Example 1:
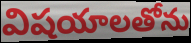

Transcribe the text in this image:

విషయాలతోను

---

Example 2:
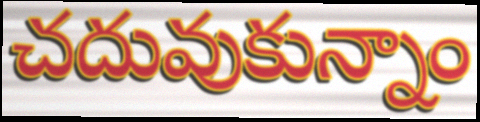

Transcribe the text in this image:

చదువుకున్నాం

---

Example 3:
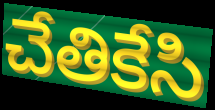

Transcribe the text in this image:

చేతికేసి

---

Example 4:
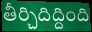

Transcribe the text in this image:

తీర్చిదిద్దింది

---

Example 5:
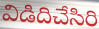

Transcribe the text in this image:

విడిదిచేసిరి